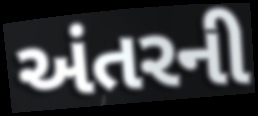
અંતરની